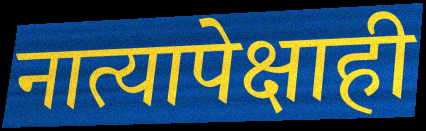
नात्यापेक्षाही